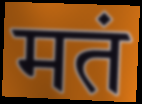
मतं